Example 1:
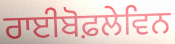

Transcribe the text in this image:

ਰਾਈਬੋਫ਼ਲੇਵਿਨ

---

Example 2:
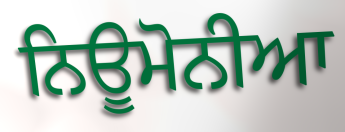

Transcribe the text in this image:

ਨਿਊਮੋਨੀਆ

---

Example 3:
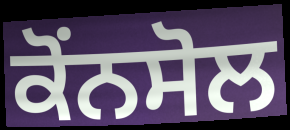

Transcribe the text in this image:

ਕੋਂਨਸੋਲ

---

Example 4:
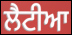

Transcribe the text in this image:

ਲੈਟੀਆ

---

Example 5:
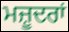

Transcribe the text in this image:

ਮਜ਼ੂਦਰਾਂ